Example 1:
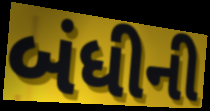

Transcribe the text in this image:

બંધીની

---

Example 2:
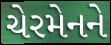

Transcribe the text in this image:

ચેરમેનને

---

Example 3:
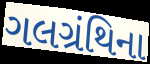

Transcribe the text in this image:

ગલગ્રંથિના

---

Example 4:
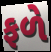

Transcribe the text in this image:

ફળે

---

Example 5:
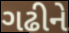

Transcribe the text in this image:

ગઢીને